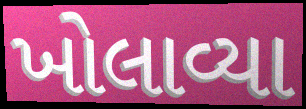
ખોલાવ્યા